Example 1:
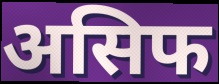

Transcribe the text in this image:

असिफ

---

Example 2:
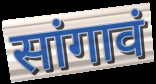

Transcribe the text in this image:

सांगावं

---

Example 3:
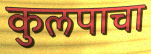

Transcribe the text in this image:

कुलपाचा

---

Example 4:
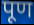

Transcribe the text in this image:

पूण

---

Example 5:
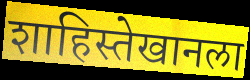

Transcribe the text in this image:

शाहिस्तेखानला